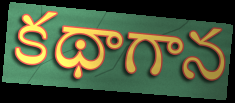
కథాగాన